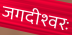
जगदीश्वरः